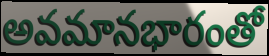
అవమానభారంతో